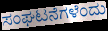
ಸಂಘಟನೆಗಳೆಂದು